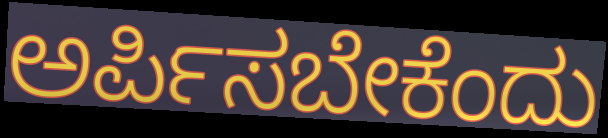
ಅರ್ಪಿಸಬೇಕೆಂದು